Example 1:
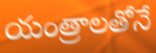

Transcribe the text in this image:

యంత్రాలతోనే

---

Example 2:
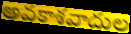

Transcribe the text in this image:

అవకాశవాదుల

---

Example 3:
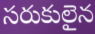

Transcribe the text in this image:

సరుకులైన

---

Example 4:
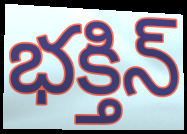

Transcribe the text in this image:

భక్తిన్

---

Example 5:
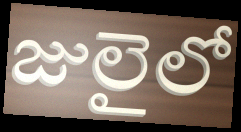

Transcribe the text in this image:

జులైలో